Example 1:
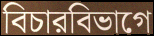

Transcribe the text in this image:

বিচারবিভাগে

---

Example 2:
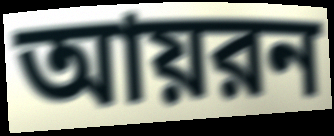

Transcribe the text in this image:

আয়রন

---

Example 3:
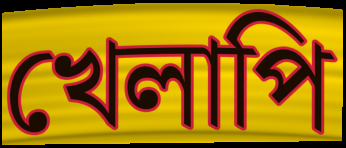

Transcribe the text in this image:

খেলাপি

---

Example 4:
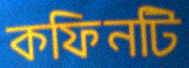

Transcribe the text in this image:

কফিনটি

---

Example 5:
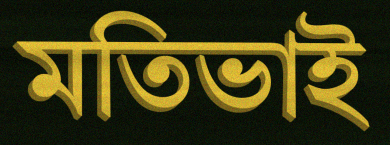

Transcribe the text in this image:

মতিভাই